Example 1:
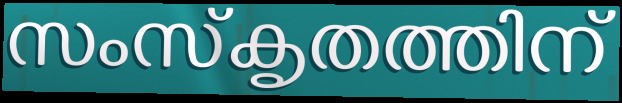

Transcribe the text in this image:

സംസ്‌കൃതത്തിന്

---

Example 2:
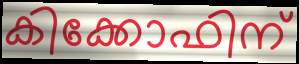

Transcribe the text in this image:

കിക്കോഫിന്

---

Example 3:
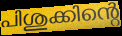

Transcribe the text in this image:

പിശുക്കിന്റെ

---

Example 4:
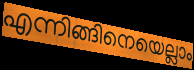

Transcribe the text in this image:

എന്നിങ്ങിനെയെല്ലാം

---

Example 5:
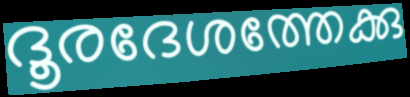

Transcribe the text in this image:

ദൂരദേശത്തേക്കു